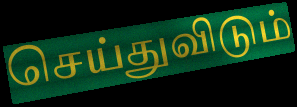
செய்துவிடும்